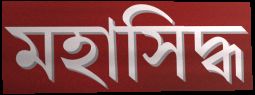
মহাসিদ্ধ